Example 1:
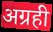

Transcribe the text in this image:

अग्रही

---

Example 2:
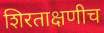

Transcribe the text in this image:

शिरताक्षणीच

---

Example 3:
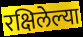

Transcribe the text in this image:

रक्षिलेल्या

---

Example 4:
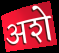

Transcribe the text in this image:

अशे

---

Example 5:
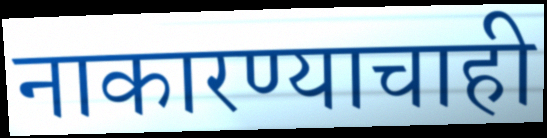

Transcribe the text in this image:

नाकारण्याचाही